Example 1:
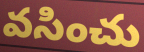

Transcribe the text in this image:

వసించు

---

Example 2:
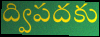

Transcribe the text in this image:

ద్విపదకు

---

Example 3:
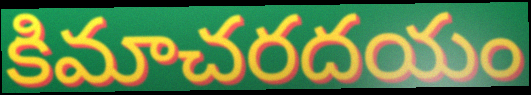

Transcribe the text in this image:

కిమాచరదయం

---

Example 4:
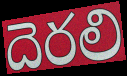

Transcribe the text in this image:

దెరలి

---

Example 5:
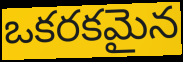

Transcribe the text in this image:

ఒకరకమైన